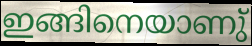
ഇങ്ങിനെയാണു്